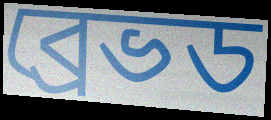
ব্রেভড